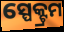
ସ୍ପେକ୍ଟ୍ରମ